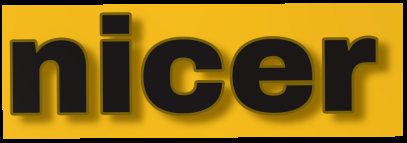
nicer